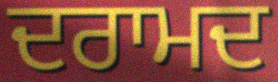
ਦਰਾਮਦ